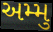
અમ્મુ